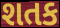
શતક